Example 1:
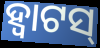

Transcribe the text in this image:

ହ୍ୱାଟସ୍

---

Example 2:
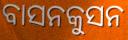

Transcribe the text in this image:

ବାସନକୁସନ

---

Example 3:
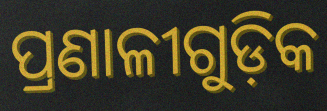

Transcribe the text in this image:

ପ୍ରଣାଳୀଗୁଡ଼ିକ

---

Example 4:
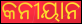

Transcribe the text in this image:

କନୀୟାନ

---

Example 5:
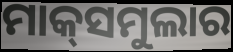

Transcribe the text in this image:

ମାକ୍‌ସମୁଲାର